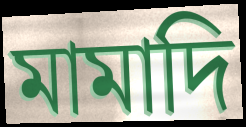
মামাদি